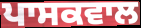
ਪਾਸਕਵਾਲ